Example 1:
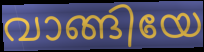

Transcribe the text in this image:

വാങ്ങിയേ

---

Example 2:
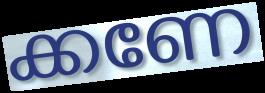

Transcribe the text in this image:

ക്കണേ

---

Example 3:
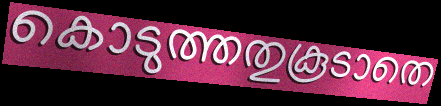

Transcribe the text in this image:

കൊടുത്തതുകൂടാതെ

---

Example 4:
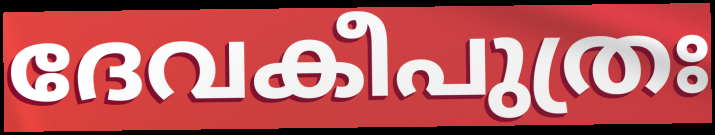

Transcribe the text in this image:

ദേവകീപുത്രഃ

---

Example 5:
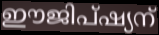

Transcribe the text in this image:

ഈജിപ്ഷ്യന്